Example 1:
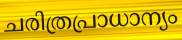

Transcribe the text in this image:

ചരിത്രപ്രാധാന്യം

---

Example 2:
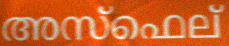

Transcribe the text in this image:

അസ്ഫെല്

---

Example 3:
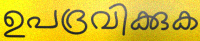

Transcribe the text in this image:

ഉപദ്രവിക്കുക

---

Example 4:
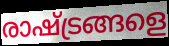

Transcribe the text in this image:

രാഷ്ട്രങ്ങളെ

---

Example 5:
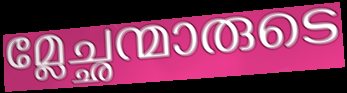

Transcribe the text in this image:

മ്ലേച്ഛന്മാരുടെ